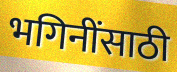
भगिनींसाठी